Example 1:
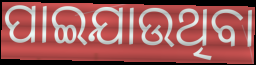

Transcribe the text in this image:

ପାଇଯାଉଥିବା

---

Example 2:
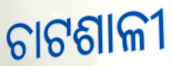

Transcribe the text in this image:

ଚାଟଶାଳୀ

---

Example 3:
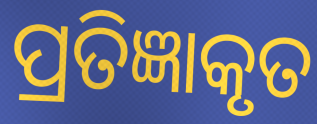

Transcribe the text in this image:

ପ୍ରତିଜ୍ଞାକୃତ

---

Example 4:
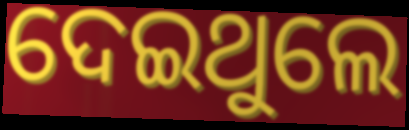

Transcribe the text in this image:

ଦେଇଥୁଲେ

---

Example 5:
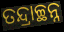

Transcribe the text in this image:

ତନ୍ଦ୍ରାଚ୍ଛନ୍ନ